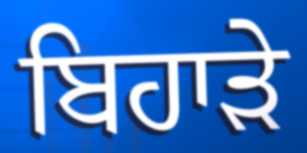
ਬਿਹਾੜੇ